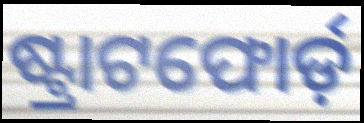
ଷ୍ଟ୍ରାଟଫୋର୍ଡ଼